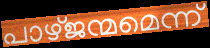
പാഴ്ജന്മമെന്ന്